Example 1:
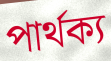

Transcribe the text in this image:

পাৰ্থক্য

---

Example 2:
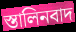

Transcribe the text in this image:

স্তালিনবাদ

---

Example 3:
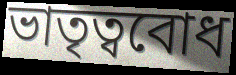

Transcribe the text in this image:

ভাতৃত্ববোধ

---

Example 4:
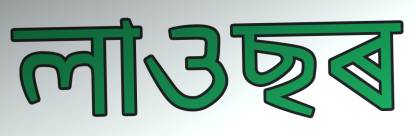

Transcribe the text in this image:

লাওছৰ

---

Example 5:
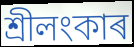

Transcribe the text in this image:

শ্ৰীলংকাৰ